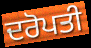
ਦਰੋਪਤੀ